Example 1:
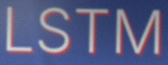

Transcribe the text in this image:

LSTM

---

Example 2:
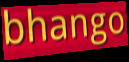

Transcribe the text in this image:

bhango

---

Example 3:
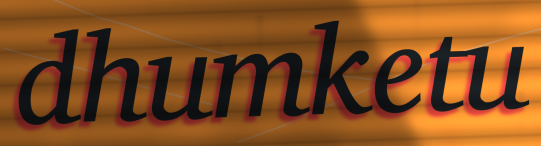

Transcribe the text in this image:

dhumketu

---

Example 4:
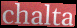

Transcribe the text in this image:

chalta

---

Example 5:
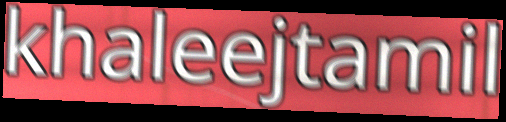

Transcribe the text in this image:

khaleejtamil